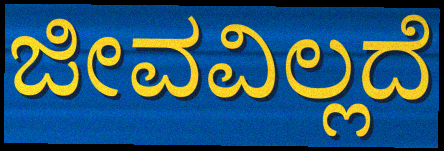
ಜೀವವಿಲ್ಲದೆ